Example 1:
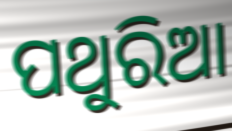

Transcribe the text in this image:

ପଥୁରିଆ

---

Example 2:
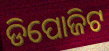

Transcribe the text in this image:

ଡିପୋଜିଟ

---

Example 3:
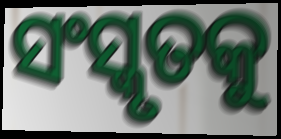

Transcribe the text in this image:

ସଂସ୍କୃତକୁ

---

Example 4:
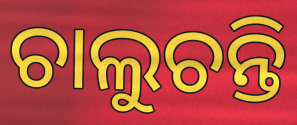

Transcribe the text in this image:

ଚାଲୁଚନ୍ତି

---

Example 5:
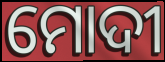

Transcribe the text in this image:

ମୋଦୀ